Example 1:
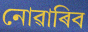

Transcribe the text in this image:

নোৱাৰিব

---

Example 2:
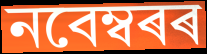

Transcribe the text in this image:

নবেম্বৰৰ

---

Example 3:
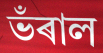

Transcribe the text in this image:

ভঁৰাল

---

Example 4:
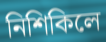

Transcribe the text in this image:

নিশিকিলে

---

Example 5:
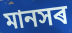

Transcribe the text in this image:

মানসৰ